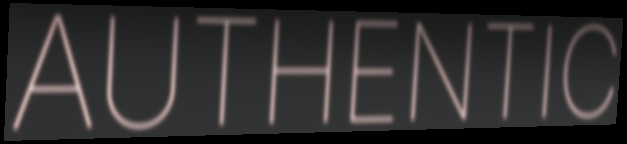
AUTHENTIC